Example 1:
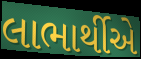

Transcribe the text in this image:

લાભાર્થીએ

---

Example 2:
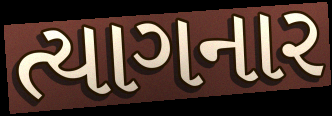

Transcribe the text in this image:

ત્યાગનાર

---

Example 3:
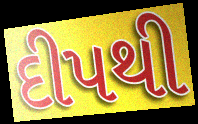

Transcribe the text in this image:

દીપથી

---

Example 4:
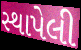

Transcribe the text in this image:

સ્‍થાપેલી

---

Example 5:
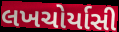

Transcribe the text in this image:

લખચોર્યાસી